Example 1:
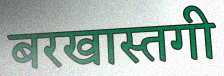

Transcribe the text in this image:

बरखास्तगी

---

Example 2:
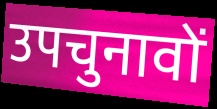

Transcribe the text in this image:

उपचुनावों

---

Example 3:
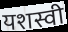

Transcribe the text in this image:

यशस्वी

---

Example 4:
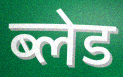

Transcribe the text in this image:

ब्लेड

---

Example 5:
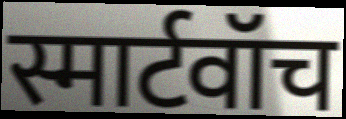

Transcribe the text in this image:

स्मार्टवॉच